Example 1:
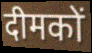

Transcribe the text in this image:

दीमकों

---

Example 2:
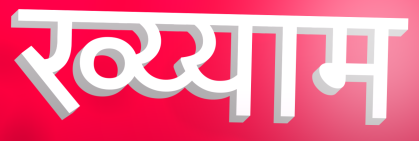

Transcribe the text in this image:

ख्य्याम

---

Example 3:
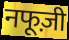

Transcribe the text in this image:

नफूज़ी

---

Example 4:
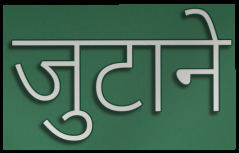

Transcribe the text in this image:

जुटाने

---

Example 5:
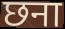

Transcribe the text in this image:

छना